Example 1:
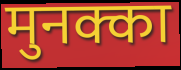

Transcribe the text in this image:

मुनक्का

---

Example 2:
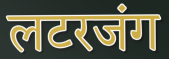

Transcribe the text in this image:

लटरजंग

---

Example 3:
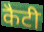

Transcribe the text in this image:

कैटी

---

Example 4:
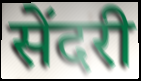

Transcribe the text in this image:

सेंदरी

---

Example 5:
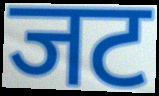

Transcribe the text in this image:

जट